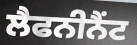
ਲੈਫਨੀਨੈਂਟ